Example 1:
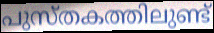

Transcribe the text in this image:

പുസ്തകത്തിലുണ്ട്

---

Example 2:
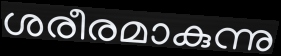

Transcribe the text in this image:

ശരീരമാകുന്നു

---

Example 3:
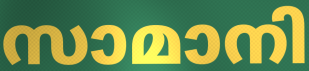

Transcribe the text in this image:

സാമാനി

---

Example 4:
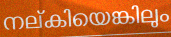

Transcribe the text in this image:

നല്‌കിയെങ്കിലും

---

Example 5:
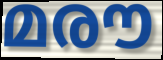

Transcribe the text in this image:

മരൗ